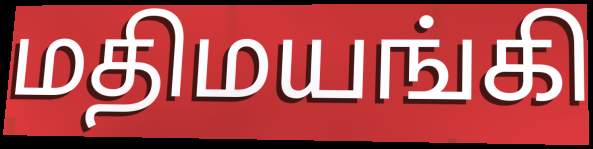
மதிமயங்கி